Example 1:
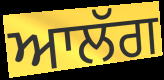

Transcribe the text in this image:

ਆਲੱਗ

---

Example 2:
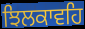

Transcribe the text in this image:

ਝਿਲਕਾਵਹਿ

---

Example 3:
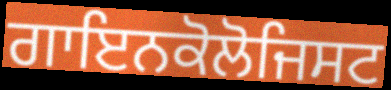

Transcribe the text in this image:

ਗਾਇਨਕੋਲੋਜਿਸਟ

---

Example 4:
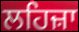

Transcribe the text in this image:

ਲਹਿਜ਼ਾ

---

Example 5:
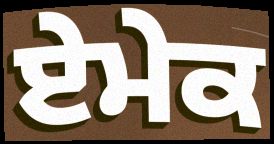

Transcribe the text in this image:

ਏਮੇਕ